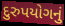
દુરુપયોગનું